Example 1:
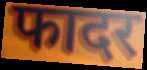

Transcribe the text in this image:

फादर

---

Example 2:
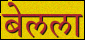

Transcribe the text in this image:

बेलला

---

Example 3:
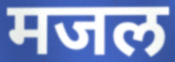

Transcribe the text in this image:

मजल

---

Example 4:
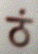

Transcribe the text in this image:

ठं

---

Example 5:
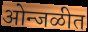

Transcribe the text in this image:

ओन्जळीत